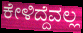
ಕೇಳಿದ್ದೆವಲ್ಲ